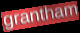
grantham